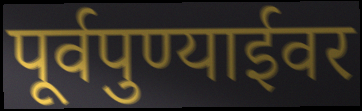
पूर्वपुण्याईवर